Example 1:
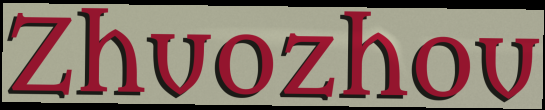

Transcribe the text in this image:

Zhuozhou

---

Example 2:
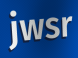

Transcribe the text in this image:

jwsr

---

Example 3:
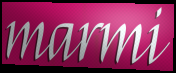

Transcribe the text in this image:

marmi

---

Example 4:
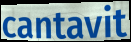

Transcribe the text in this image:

cantavit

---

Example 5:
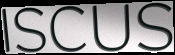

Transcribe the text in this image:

ISCUS